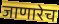
जाणारेच